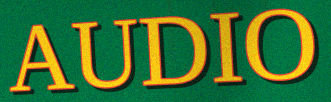
AUDIO